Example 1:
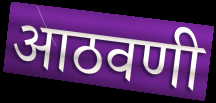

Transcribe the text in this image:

आठवणी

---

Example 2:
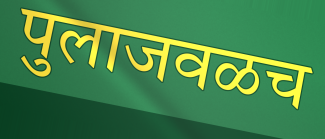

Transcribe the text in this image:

पुलाजवळच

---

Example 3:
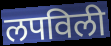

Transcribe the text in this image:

लपविली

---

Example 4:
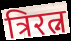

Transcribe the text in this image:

त्रिरत्न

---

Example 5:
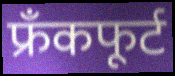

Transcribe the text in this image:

फ्रँकफूर्ट